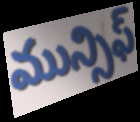
మున్సిఫ్